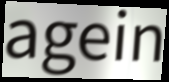
agein